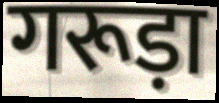
गरूड़ा